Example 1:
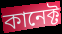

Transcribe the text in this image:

কানেক্ট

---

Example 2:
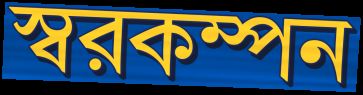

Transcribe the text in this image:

স্বরকম্পন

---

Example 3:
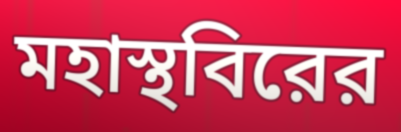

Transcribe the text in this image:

মহাস্থবিরের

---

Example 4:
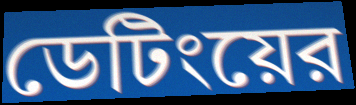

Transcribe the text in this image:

ডেটিংয়ের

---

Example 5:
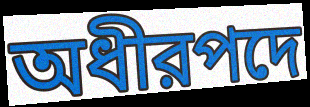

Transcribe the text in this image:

অধীরপদে